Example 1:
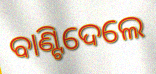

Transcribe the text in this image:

ବାଣ୍ଟିଦେଲେ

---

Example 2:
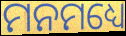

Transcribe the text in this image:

ମନମଧ୍ୟେ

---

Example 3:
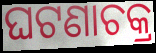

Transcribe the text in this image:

ଘଟଣାଚକ୍ର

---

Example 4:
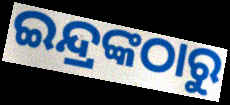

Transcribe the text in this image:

ଇନ୍ଦ୍ରଙ୍କଠାରୁ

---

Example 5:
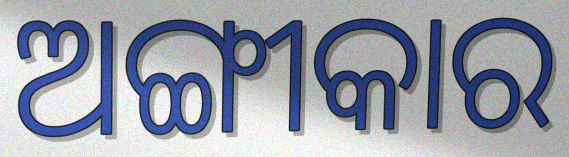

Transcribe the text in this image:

ଅଙ୍ଗୀକାର